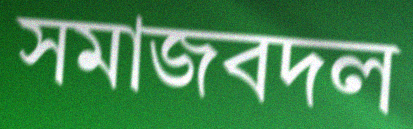
সমাজবদল